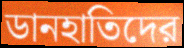
ডানহাতিদের